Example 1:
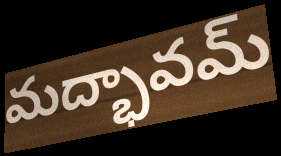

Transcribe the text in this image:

మద్భావమ్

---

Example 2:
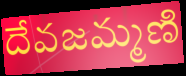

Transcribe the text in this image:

దేవజమ్మణి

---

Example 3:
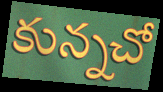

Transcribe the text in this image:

కున్నచో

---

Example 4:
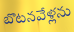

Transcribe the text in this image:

బొటనవేళ్లను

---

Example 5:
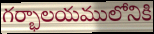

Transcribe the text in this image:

గర్భాలయములోనికి